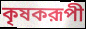
কৃষকরূপী